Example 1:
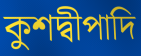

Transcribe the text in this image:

কুশদ্বীপাদি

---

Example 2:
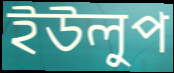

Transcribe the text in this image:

ইউলুপ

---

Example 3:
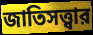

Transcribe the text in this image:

জাতিসত্ত্বার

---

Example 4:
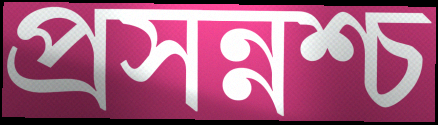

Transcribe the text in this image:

প্রসন্নশ্চ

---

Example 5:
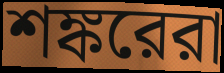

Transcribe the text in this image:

শঙ্করেরা